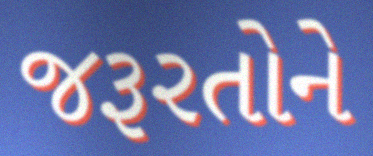
જરૂરતોને